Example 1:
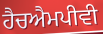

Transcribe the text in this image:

ਹੈਚਐਮਪੀਵੀ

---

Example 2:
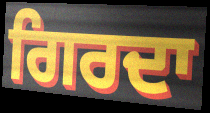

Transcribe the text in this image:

ਗਿਰਦਾ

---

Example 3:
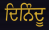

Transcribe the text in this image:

ਦਿਨਿੰਦੂ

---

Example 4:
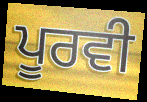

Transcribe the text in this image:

ਪੂਰਵੀ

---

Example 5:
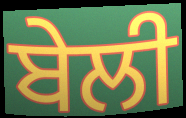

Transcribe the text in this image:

ਬੇਲੀ